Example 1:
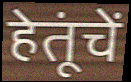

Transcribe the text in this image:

हेतूंचें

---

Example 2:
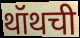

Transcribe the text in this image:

थॉथची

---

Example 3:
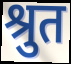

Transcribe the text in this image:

श्रुत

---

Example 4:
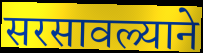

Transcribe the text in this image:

सरसावल्याने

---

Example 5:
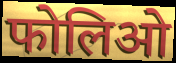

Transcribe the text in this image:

फोलिओ